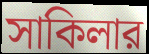
সাকিলার